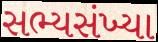
સભ્યસંખ્યા